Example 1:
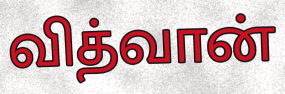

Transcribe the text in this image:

வித்வான்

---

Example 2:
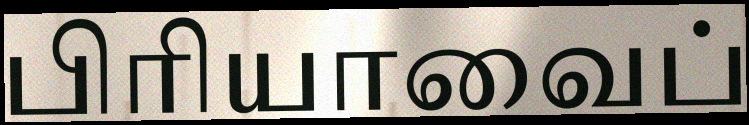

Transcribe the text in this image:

பிரியாவைப்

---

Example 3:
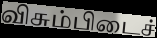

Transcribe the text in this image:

விசும்பிடைச்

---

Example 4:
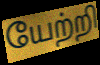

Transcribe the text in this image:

யேற்றி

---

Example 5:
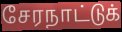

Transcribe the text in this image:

சேரநாட்டுக்